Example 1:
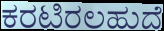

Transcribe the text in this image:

ಕರಟಿರಲಹುದೆ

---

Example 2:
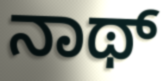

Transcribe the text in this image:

ನಾಥ್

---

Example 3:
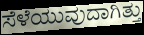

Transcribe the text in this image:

ಸೆಳೆಯುವುದಾಗಿತ್ತು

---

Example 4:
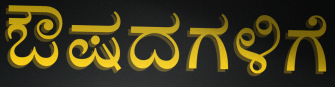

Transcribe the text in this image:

ಔಷದಗಳಿಗೆ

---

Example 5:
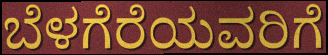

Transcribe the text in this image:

ಬೆಳಗೆರೆಯವರಿಗೆ